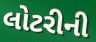
લોટરીની